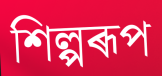
শিল্পৰূপ